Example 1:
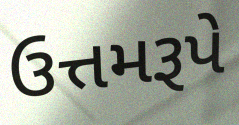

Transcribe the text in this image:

ઉત્તમરૂપે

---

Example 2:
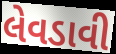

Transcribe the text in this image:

લેવડાવી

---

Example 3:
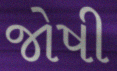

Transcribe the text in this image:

જોષી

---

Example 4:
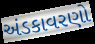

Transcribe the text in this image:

અંડકાવરણો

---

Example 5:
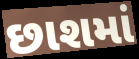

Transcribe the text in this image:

છાશમાં